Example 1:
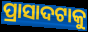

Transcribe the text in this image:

ପ୍ରାସାଦଟାକୁ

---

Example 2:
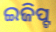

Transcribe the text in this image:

ଇଜିପ୍ଟ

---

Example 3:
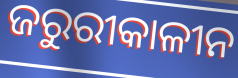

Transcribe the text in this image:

ଜରୁରୀକାଳୀନ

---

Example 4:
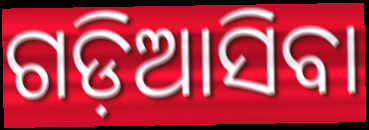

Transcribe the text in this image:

ଗଡ଼ିଆସିବା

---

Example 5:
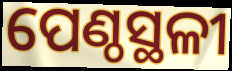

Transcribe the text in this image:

ପେଣ୍ଠସ୍ଥଳୀ